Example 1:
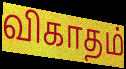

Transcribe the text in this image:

விகாதம்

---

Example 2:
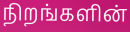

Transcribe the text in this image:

நிறங்களின்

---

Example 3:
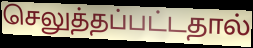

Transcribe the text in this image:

செலுத்தப்பட்டதால்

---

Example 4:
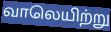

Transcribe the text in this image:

வாலெயிற்று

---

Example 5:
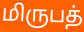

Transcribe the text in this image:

மிருபத்